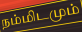
நம்மிடமும்